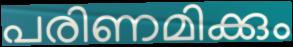
പരിണമിക്കും